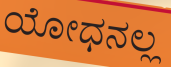
ಯೋಧನಲ್ಲ